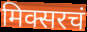
मिक्सरचं